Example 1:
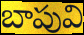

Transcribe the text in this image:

బాపువి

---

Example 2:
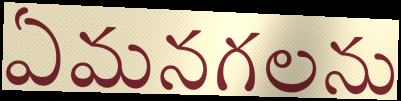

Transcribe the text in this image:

ఏమనగలను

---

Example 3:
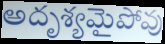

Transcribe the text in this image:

అదృశ్యమైపోవు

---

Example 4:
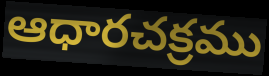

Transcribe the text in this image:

ఆధారచక్రము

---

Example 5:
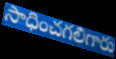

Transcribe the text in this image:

సాధించగలిగారు